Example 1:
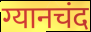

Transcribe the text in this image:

ग्यानचंद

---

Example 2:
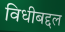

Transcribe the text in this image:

विधीबद्दल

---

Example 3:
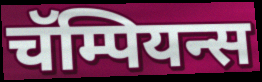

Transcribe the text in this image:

चॅम्पियन्स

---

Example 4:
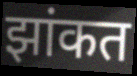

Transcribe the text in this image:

झांकत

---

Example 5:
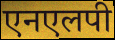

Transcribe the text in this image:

एनएलपी